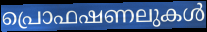
പ്രൊഫഷണലുകൾ